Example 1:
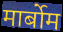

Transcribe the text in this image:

मार्बोम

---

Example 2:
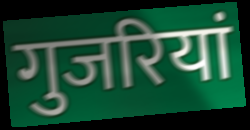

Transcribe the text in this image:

गुजरियां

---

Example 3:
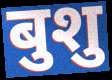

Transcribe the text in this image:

बुशु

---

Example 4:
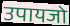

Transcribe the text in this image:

उपायजो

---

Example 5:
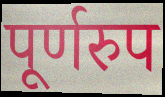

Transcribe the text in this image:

पूर्णरुप